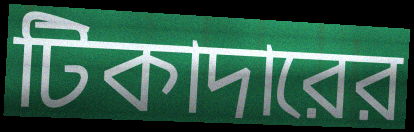
টিকাদারের